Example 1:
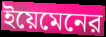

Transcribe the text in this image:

ইয়েমেনের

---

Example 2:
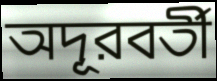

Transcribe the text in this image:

অদূরবর্তী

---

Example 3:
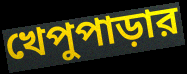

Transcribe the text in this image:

খেপুপাড়ার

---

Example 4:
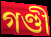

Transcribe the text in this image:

গণ্ডী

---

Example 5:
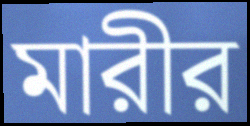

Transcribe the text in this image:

মারীর